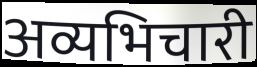
अव्यभिचारी